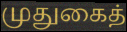
முதுகைத்